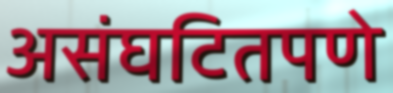
असंघटितपणे